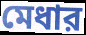
মেধার